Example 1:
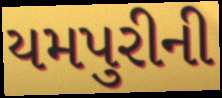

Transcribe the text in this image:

યમપુરીની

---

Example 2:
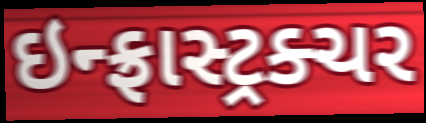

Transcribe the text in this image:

ઇન્ફ્રાસ્ટ્રક્ચર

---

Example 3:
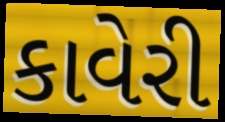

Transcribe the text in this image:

કાવેરી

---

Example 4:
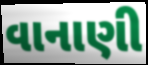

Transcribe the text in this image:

વાનાણી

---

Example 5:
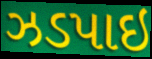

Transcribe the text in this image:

ઝડપાઇ